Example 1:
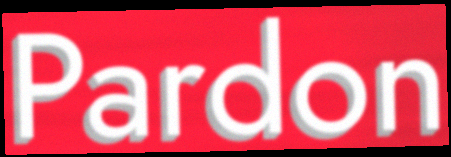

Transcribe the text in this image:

Pardon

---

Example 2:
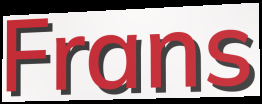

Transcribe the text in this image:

Frans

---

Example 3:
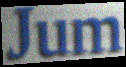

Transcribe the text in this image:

Jum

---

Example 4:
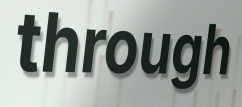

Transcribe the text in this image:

through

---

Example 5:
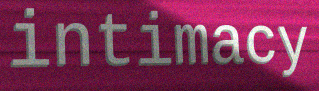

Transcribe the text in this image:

intimacy